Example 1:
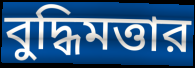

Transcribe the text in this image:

বুদ্ধিমত্তার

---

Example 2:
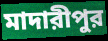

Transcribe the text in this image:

মাদারীপুর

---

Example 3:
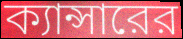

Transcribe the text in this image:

ক্যান্সারের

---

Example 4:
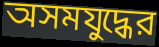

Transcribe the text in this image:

অসমযুদ্ধের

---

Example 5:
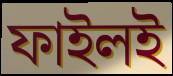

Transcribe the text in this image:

ফাইলই